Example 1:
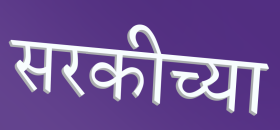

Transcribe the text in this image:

सरकीच्या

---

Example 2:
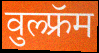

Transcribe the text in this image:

वुल्फ्रॅम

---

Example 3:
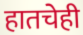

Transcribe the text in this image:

हातचेही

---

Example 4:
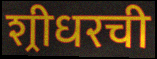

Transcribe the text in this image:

श्रीधरची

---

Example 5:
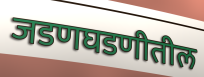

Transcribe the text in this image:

जडणघडणीतील